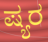
ಷ್ಯರ